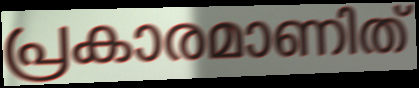
പ്രകാരമാണിത്